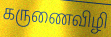
கருணைவிழி